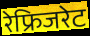
रेफ्रिजरेट